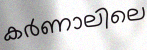
കർണാലിലെ